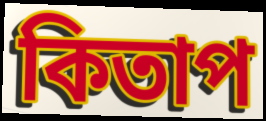
কিতাপ